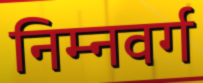
निम्नवर्ग